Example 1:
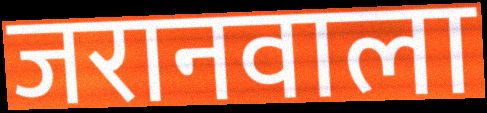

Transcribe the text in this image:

जरानवाला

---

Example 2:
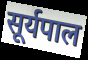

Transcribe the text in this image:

सूर्यपाल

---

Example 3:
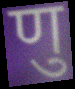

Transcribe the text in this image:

णु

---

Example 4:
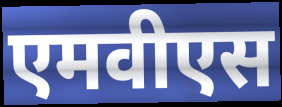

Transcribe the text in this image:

एमवीएस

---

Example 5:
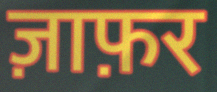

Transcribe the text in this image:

ज़ाफ़र